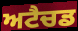
ਅਟੈਚਡ